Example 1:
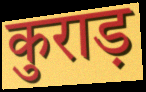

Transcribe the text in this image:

कुराड़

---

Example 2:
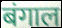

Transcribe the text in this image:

बंगाल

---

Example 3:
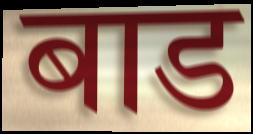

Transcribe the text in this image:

बाड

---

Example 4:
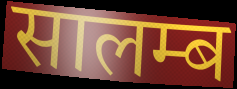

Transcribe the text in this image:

सालम्ब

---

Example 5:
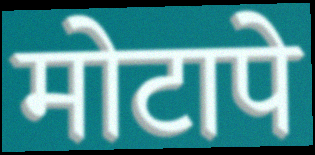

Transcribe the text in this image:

मोटापे